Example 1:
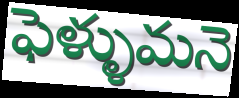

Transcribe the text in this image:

ఫెళ్ళుమనె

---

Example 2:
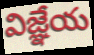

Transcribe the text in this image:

విజ్ఞేయ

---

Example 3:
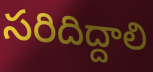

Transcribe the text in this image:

సరిదిద్దాలి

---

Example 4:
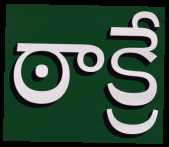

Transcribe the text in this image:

ఠాక్రే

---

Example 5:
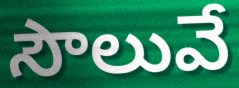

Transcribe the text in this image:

సౌలువే